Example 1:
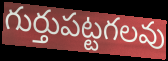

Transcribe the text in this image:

గుర్తుపట్టగలవు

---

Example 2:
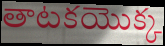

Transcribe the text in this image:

తాటకయొక్క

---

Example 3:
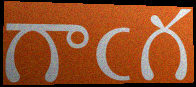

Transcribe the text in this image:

గాఁగ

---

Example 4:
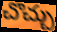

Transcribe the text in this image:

చొచ్చు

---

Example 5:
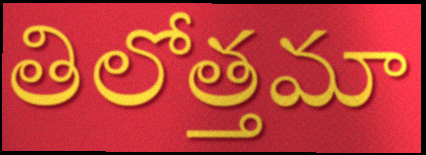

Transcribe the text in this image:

తిలోత్తమా